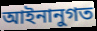
আইনানুগত